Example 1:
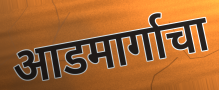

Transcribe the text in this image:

आडमार्गाचा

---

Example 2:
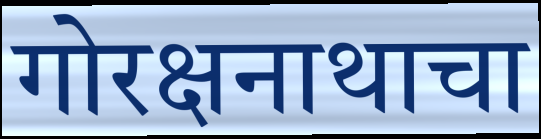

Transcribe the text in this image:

गोरक्षनाथाचा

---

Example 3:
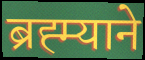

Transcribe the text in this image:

ब्रह्म्याने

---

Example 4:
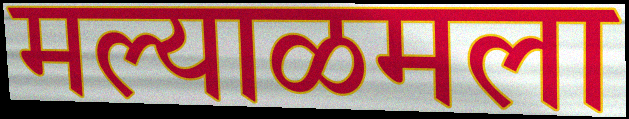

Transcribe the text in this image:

मल्याळमला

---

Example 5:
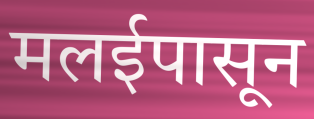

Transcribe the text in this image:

मलईपासून